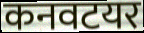
कनवटयर